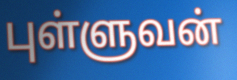
புள்ளுவன்